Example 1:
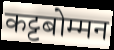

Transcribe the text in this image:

कट्टबोम्मन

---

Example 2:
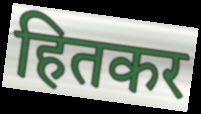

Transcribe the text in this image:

हितकर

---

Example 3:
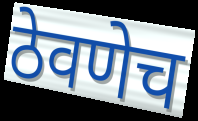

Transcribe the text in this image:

ठेवणेच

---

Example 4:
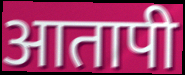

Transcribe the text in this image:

आतापी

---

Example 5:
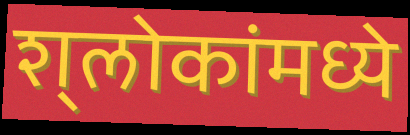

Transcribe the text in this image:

श्लोकांमध्ये